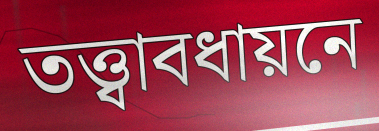
তত্ত্বাবধায়নে